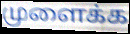
முளைக்க